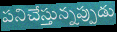
పనిచేస్తున్నప్పుడు